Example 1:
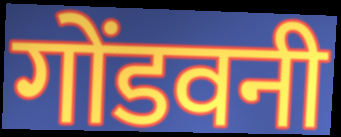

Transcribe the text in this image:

गोंडवनी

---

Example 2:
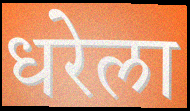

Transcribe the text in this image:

धरेला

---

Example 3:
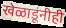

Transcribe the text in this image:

खेळाडूंनीही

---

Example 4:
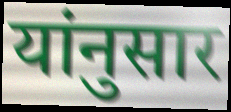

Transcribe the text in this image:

यांनुसार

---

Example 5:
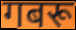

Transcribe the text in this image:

गबरू